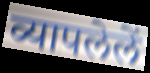
व्यापलेलें